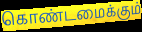
கொண்டமைக்கும்